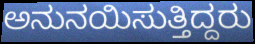
ಅನುನಯಿಸುತ್ತಿದ್ದರು